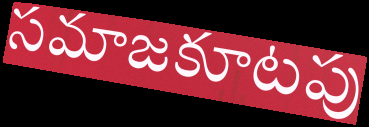
సమాజకూటపు